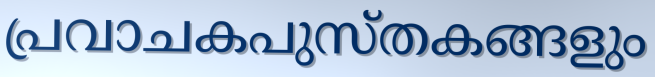
പ്രവാചകപുസ്തകങ്ങളും